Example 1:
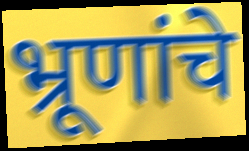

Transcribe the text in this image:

भ्रूणांचे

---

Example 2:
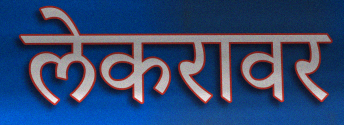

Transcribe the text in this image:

लेकरावर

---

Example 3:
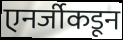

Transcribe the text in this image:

एनर्जीकडून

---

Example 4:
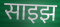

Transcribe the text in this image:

साइझ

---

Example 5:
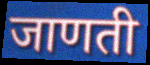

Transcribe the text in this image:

जाणती